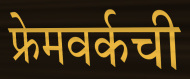
फ्रेमवर्कची